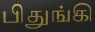
பிதுங்கி